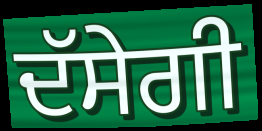
ਦੱਸੇਗੀ